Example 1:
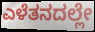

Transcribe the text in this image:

ಎಳೆತನದಲ್ಲೇ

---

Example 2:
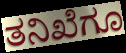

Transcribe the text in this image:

ತನಿಖೆಗೂ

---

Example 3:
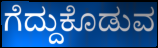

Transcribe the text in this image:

ಗೆದ್ದುಕೊಡುವ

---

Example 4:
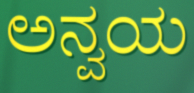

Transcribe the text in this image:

ಅನ್ವಯ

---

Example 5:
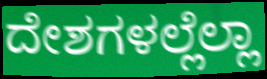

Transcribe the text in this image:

ದೇಶಗಳಲ್ಲೆಲ್ಲಾ